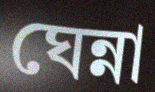
ঘেন্না